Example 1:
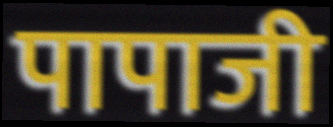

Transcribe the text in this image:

पापाजी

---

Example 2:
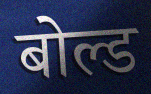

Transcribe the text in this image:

बोल्ड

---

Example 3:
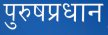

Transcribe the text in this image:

पुरुषप्रधान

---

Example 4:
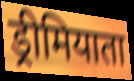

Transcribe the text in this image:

ड्रीमियाता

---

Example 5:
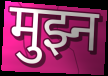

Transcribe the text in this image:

मुझ्न